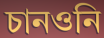
চানওনি